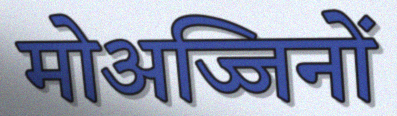
मोअज्जिनों